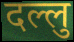
दल्लु